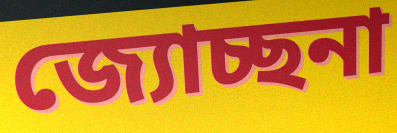
জ্যোচ্ছনা